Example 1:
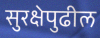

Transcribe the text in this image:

सुरक्षेपुढील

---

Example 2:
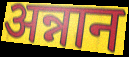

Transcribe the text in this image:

अन्नान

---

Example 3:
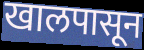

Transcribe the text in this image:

खालपासून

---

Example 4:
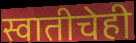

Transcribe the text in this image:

स्वातीचेही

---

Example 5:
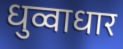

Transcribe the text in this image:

धुव्वाधार